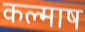
कल्माष